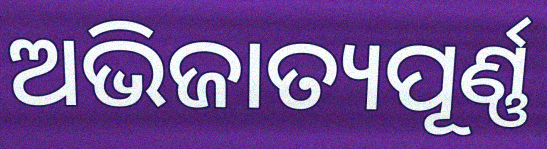
ଅଭିଜାତ୍ୟପୂର୍ଣ୍ଣ